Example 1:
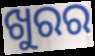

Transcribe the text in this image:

ଖୁରର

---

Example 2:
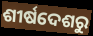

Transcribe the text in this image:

ଶୀର୍ଷଦେଶରୁ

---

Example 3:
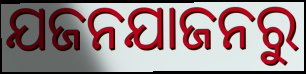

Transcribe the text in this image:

ଯଜନଯାଜନରୁ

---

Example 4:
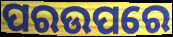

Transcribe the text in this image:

ପରଉପରେ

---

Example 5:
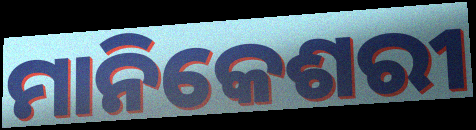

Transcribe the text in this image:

ମାନିକେଶରୀ